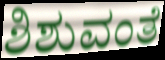
ಶಿಶುವಂತೆ